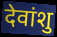
देवांशु